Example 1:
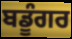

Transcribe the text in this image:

ਬਡੂੰਗਰ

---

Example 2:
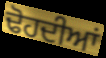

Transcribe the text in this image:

ਢੋਹਦੀਆਂ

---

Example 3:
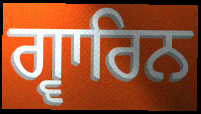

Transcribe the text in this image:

ਗ੍ਵਾਰਿਨ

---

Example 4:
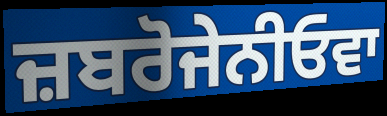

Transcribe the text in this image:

ਜ਼ਬਰੋਜੇਨੀਓਵਾ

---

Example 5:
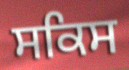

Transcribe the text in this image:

ਸਕਿਸ